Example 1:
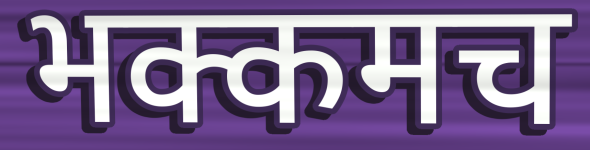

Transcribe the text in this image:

भक्कमच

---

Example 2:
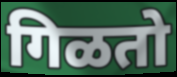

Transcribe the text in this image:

गिळतो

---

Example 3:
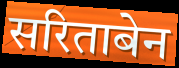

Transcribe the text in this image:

सरिताबेन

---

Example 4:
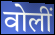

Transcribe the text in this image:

वोलीं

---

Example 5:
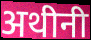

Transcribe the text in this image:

अथीनी